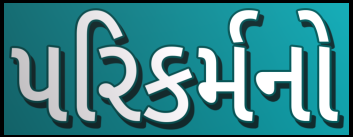
પરિકર્મનો